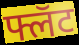
फ्लॅट